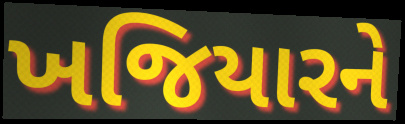
ખજિયારને